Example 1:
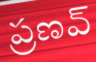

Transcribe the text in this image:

ప్రణవ్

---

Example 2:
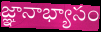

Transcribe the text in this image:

జ్ఞానాభ్యాసం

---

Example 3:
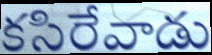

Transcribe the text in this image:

కసిరేవాడు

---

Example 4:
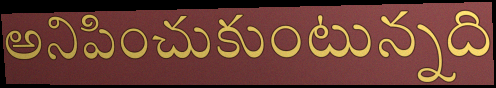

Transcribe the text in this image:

అనిపించుకుంటున్నది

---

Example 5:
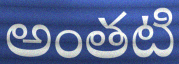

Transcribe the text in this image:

అంతటి